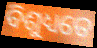
ବିଶୁଧ୍ୟତେ